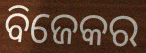
ବିଜେକର